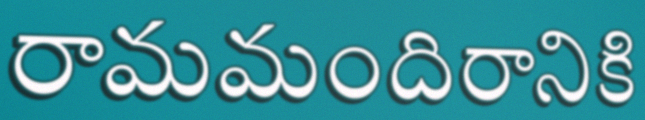
రామమందిరానికి